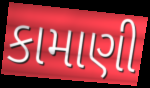
કામાણી